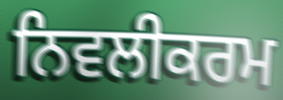
ਨਿਵਲੀਕਰਮ